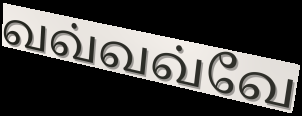
வவ்வவ்வே